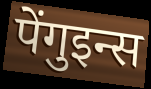
पेंगुइन्स